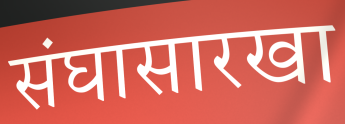
संघासारखा